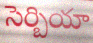
సెర్బియా